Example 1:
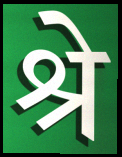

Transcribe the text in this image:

श्रे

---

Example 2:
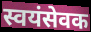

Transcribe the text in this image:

स्वयंसेवक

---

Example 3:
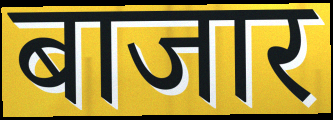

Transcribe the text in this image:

बाजार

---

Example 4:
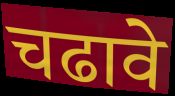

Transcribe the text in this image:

चढावे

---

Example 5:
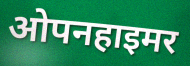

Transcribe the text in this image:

ओपनहाइमर